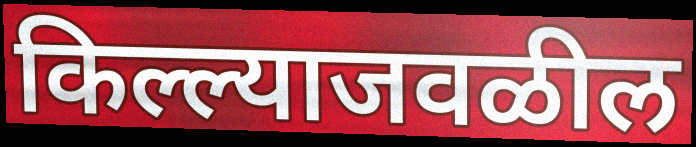
किल्ल्याजवळील